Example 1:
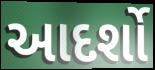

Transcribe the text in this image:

આદર્શો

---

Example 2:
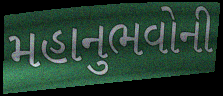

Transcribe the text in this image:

મહાનુભવોની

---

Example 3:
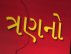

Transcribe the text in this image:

ત્રણનો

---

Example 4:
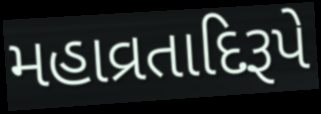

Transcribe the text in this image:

મહાવ્રતાદિરૂપે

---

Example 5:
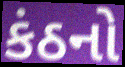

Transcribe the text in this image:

કંઠનો